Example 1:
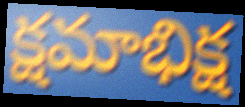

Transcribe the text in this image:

క్షమాభిక్ష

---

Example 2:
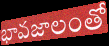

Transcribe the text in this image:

భావజాలంతో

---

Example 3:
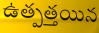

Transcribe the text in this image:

ఉత్పత్తయిన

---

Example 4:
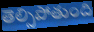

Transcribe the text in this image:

తెల్సిపోతుంది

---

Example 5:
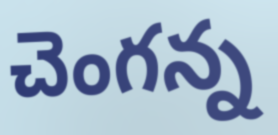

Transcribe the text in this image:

చెంగన్న